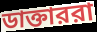
ডাক্তাররা